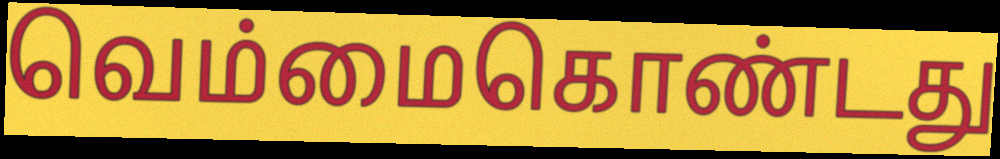
வெம்மைகொண்டது